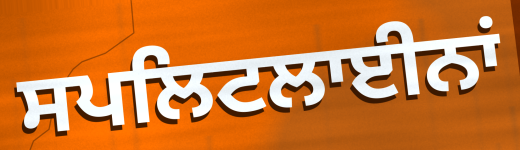
ਸਪਲਿਟਲਾਈਨਾਂ